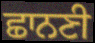
ਛਾਨਣੀ